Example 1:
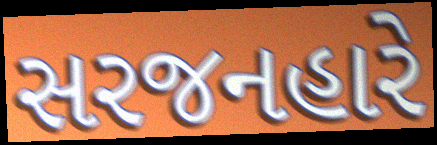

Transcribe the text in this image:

સરજનહારે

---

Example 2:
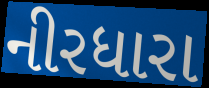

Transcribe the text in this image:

નીરધારા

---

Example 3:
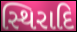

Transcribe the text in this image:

સ્થિરાદિ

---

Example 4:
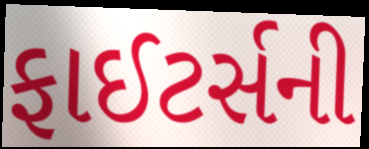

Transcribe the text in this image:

ફાઈટર્સની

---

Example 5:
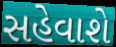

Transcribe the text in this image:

સહેવાશે